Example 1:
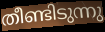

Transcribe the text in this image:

തീണ്ടിടുന്നു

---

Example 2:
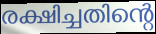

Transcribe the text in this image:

രക്ഷിച്ചതിന്റെ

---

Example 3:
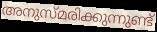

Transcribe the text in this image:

അനുസ്മരിക്കുന്നുണ്ട്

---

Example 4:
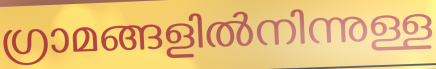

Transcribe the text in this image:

ഗ്രാമങ്ങളിൽനിന്നുള്ള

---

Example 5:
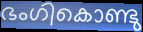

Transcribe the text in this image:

ഭംഗികൊണ്ടു